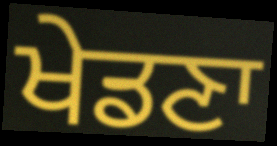
ਖੇਡਣਾ